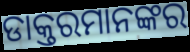
ଡାକ୍ତରମାନଙ୍କର